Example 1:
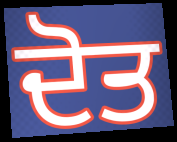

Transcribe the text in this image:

ਦੋਤ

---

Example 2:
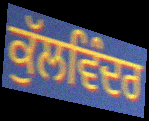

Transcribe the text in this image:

ਕੁੱਲਵਿੰਦਰ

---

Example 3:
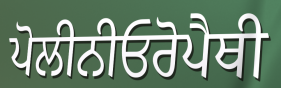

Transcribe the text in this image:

ਪੋਲੀਨੀਓਰੋਪੈਥੀ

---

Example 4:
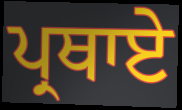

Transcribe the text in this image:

ਪ੍ਰਥਾਏ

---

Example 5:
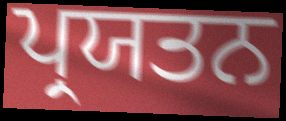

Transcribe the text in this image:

ਪ੍ਰਯਤਨ